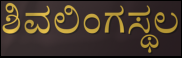
ಶಿವಲಿಂಗಸ್ಥಲ